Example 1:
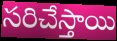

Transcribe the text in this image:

సరిచేస్తాయి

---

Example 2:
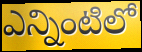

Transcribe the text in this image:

ఎన్నింటిలో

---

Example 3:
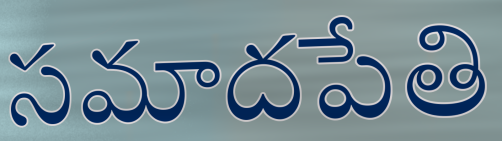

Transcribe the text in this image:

సమాదపేతి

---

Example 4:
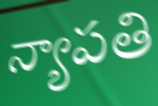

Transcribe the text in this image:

న్యాపతి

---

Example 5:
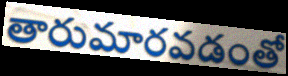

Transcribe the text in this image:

తారుమారవడంతో